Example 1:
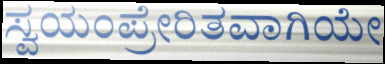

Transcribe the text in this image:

ಸ್ವಯಂಪ್ರೇರಿತವಾಗಿಯೇ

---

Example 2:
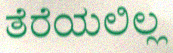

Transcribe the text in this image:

ತೆರೆಯಲಿಲ್ಲ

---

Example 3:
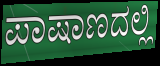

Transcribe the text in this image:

ಪಾಷಾಣದಲ್ಲಿ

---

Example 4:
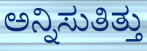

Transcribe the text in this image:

ಅನ್ನಿಸುತಿತ್ತು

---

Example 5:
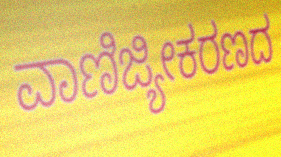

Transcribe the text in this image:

ವಾಣಿಜ್ಯೀಕರಣದ